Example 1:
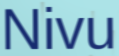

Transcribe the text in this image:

Nivu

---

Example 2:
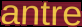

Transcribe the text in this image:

antre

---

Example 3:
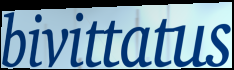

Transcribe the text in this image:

bivittatus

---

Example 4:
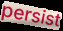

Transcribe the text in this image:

persist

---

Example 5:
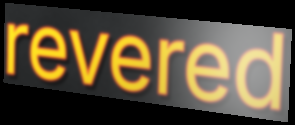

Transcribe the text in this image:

revered